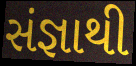
સંજ્ઞાથી